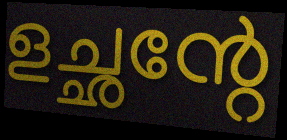
ളച്ഛന്റേ